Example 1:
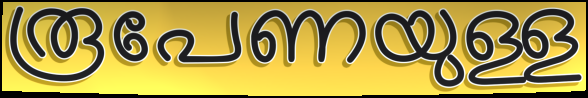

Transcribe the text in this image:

രൂപേണയുള്ള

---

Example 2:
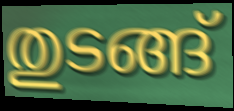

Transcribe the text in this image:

തുടങ്ങ്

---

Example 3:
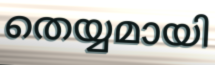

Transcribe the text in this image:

തെയ്യമായി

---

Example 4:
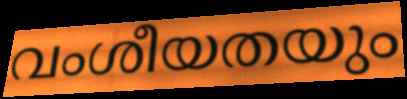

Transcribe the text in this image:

വംശീയതയും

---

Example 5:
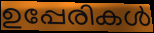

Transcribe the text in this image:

ഉപ്പേരികൾ